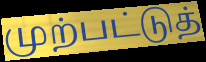
முற்பட்டுத்